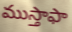
ముస్తాఫా